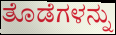
ತೊಡೆಗಳನ್ನು